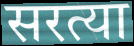
सरत्या